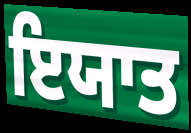
ਇਯਾਤ